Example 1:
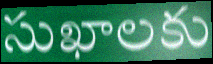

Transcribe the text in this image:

సుఖాలకు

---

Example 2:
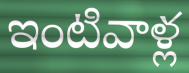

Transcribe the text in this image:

ఇంటివాళ్ల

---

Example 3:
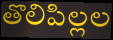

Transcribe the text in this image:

తొలిపిల్లల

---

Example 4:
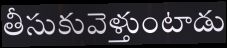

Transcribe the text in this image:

తీసుకువెళ్తుంటాడు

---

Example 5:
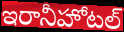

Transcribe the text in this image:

ఇరానీహోటల్